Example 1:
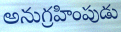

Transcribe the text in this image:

అనుగ్రహింపుడు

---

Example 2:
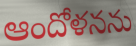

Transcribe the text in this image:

ఆందోళనను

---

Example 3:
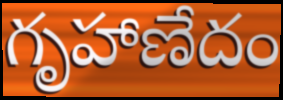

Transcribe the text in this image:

గృహాణేదం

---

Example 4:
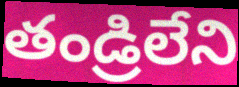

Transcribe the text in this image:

తండ్రిలేని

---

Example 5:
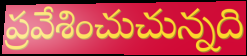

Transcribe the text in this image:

ప్రవేశించుచున్నది